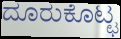
ದೂರುಕೊಟ್ಟ